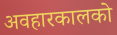
अवहारकालको